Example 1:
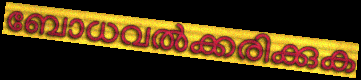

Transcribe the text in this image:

ബോധവൽക്കരിക്കുക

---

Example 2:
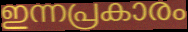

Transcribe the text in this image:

ഇന്നപ്രകാരം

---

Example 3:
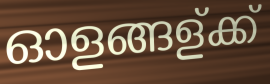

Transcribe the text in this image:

ഓളങ്ങള്ക്ക്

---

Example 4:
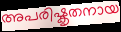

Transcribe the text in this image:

അപരിഷ്കൃതനായ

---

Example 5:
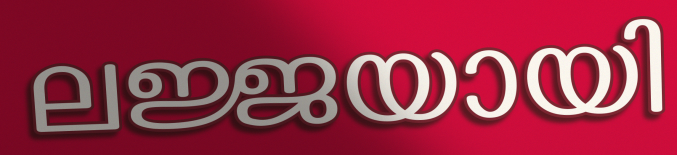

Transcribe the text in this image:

ലജ്ജയായി